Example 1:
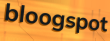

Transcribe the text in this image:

bloogspot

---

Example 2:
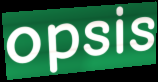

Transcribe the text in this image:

opsis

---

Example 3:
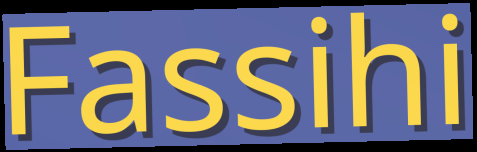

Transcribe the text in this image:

Fassihi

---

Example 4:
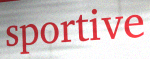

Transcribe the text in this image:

sportive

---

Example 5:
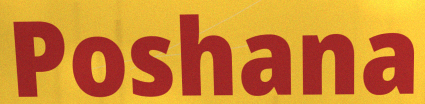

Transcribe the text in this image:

Poshana